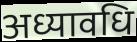
अध्यावधि